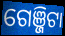
ଗେଞ୍ଜିଟା